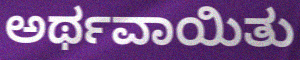
ಅರ್ಥವಾಯಿತು